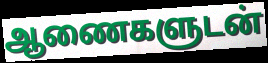
ஆணைகளுடன்